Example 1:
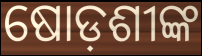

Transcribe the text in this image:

ଷୋଡ଼ଶୀଙ୍କ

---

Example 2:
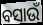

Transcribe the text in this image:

ବସାଉଁ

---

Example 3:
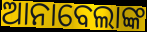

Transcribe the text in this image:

ଆନାବେଲାଙ୍କ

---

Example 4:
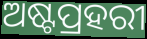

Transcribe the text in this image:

ଅଷ୍ଟପ୍ରହରୀ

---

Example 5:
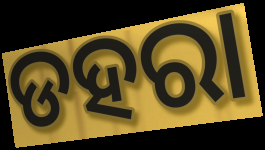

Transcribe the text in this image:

ଡହରା